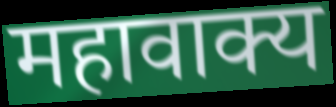
महावाक्य